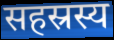
सहस्रस्य